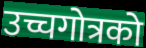
उच्चगोत्रको